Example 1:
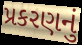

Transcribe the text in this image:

પ્રકરણનું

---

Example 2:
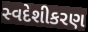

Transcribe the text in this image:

સ્વદેશીકરણ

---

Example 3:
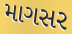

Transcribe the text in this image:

માગસર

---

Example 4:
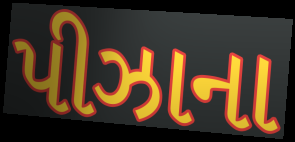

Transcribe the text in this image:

પીઝાના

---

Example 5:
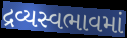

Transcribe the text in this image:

દ્રવ્યસ્વભાવમાં